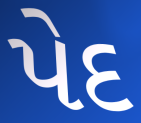
પેદ